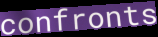
confronts